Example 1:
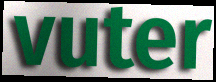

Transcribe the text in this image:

vuter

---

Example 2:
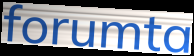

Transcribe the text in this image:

forumta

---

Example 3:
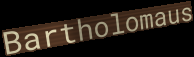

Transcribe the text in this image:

Bartholomaus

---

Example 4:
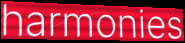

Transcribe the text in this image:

harmonies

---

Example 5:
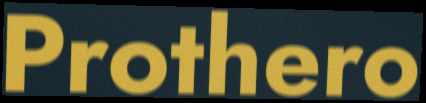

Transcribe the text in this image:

Prothero